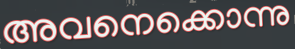
അവനെക്കൊന്നു